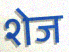
शेज